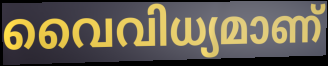
വൈവിധ്യമാണ്